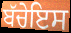
ਬੱਚੇਇਸ